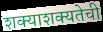
शक्याशक्यतेची